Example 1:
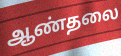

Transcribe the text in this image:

ஆண்தலை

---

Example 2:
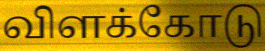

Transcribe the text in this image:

விளக்கோடு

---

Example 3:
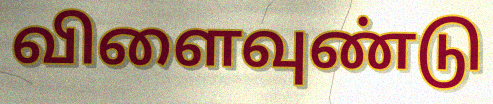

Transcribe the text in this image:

விளைவுண்டு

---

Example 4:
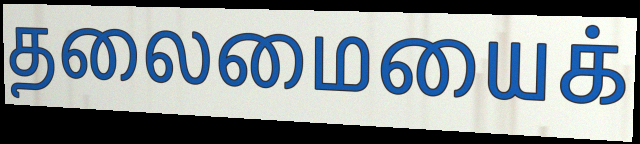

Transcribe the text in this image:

தலைமையைக்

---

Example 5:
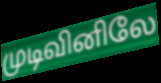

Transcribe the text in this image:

முடிவினிலே